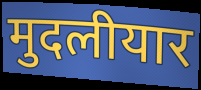
मुदलीयार